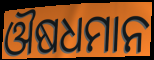
ଔଷଧମାନ